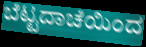
ಬೆಟ್ಟದಾಚೆಯಿಂದ